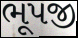
ભૂપજી